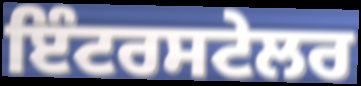
ਇੰਟਰਸਟੇਲਰ